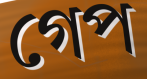
গেপ